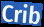
Crib